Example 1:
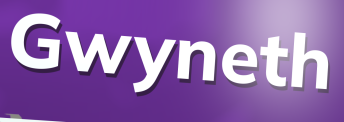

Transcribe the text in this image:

Gwyneth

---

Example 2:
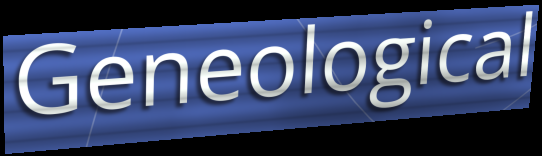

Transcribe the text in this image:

Geneological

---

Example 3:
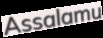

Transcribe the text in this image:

Assalamu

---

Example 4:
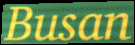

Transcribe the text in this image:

Busan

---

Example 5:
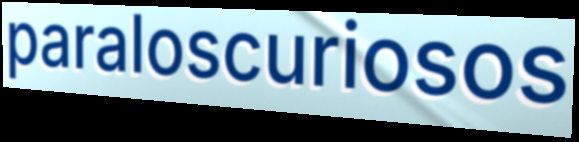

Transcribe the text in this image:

paraloscuriosos